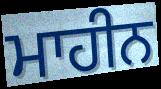
ਮਾਹੀਨ